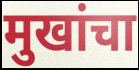
मुखांचा